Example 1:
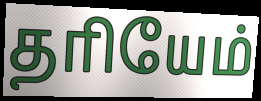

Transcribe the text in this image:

தரியேம்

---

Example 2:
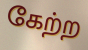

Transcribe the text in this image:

கேற்ற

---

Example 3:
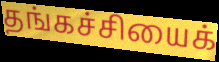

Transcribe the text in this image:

தங்கச்சியைக்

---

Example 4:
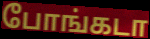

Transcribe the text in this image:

போங்கடா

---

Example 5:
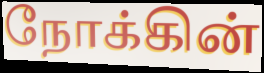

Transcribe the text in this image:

நோக்கின்